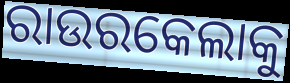
ରାଉରକେଲାକୁ